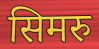
सिमरु